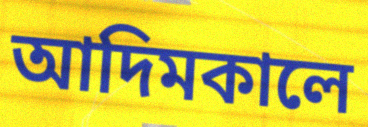
আদিমকালে